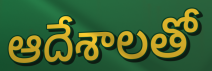
ఆదేశాలతో